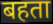
बहता